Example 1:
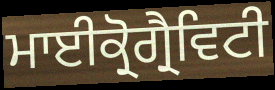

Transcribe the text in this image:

ਮਾਈਕ੍ਰੋਗ੍ਰੈਵਿਟੀ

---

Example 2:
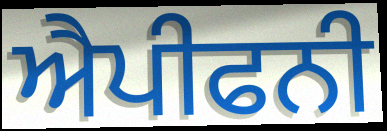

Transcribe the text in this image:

ਐਪੀਫਨੀ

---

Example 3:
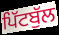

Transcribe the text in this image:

ਪਿੱਟਬੁੱਲ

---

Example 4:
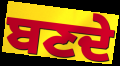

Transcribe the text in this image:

ਬਣਦੇ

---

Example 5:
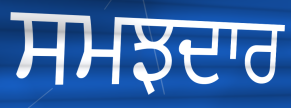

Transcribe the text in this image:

ਸਮਝਦਾਰ